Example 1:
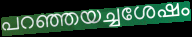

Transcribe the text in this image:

പറഞ്ഞയച്ചശേഷം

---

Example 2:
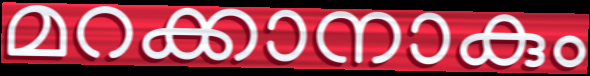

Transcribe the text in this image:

മറക്കാനാകും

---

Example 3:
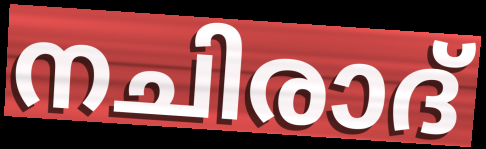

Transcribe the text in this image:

നചിരാദ്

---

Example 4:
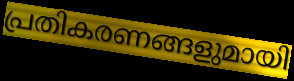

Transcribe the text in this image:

പ്രതികരണങ്ങളുമായി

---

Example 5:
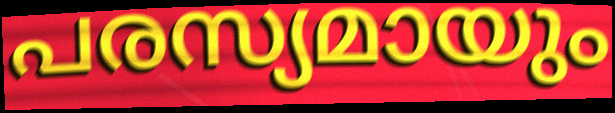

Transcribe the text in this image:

പരസ്യമായും